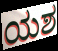
ಯಶ